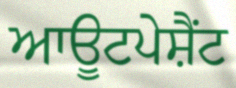
ਆਊਟਪੇਸ਼ੈਂਟ